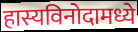
हास्यविनोदामध्ये